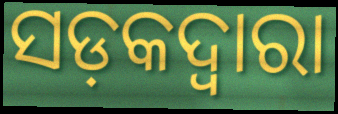
ସଡ଼କଦ୍ୱାରା